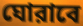
ঘোরাবে